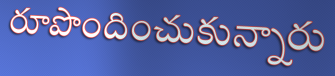
రూపొందించుకున్నారు